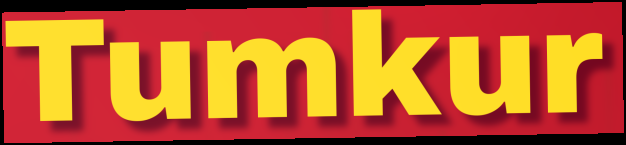
Tumkur